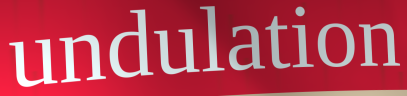
undulation